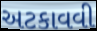
અટકાવવી